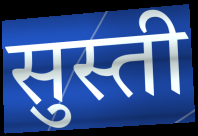
सुस्‍ती